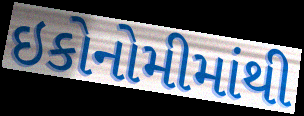
ઇકોનોમીમાંથી